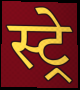
स्ट्रे